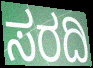
ಸರದಿ